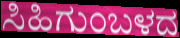
ಸಿಹಿಗುಂಬಳದ